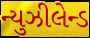
ન્યુઝીલેન્ડ